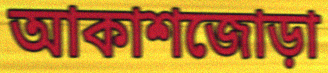
আকাশজোড়া